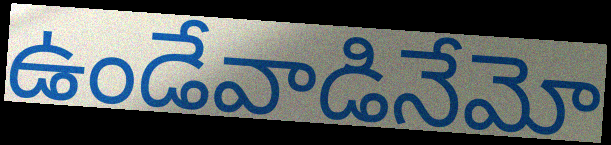
ఉండేవాడినేమో